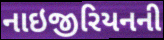
નાઇજીરિયનની